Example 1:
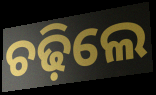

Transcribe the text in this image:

ଚଢ଼ିଲେ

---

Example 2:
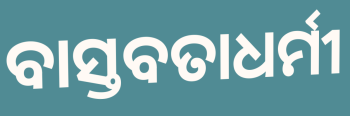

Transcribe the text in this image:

ବାସ୍ତବତାଧର୍ମୀ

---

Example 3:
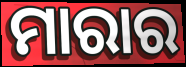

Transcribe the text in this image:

ମାରାର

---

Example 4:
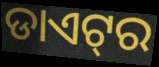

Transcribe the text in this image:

ଡାଏଟ୍‌ର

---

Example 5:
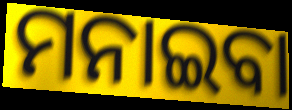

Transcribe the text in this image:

ମନାଇବା